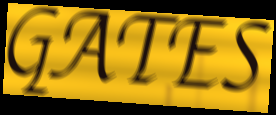
GATES